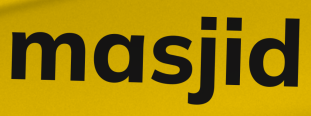
masjid